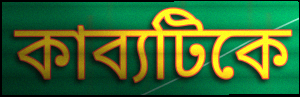
কাব্যটিকে